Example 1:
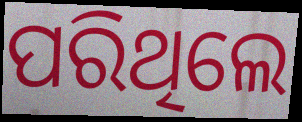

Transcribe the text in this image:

ପରିଥିଲେ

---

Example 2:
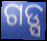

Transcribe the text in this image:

ଗଡ୍ସ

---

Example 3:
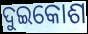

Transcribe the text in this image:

ଦୁଇକୋଶ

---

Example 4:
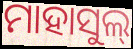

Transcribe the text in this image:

ମାହାସୁଲ୍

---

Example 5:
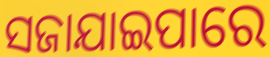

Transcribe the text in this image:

ସଜାଯାଇପାରେ